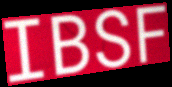
IBSF